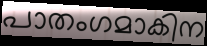
പാതംഗമാകിന